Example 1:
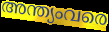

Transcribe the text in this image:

അന്ത്യംവരെ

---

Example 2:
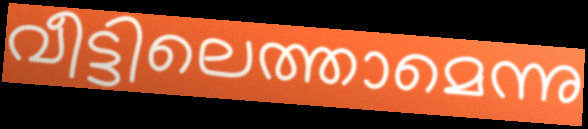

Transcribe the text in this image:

വീട്ടിലെത്താമെന്നു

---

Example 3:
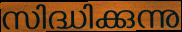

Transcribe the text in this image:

സിദ്ധിക്കുന്നു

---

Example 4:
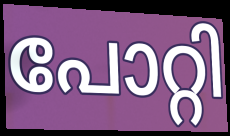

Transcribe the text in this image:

പോറ്റി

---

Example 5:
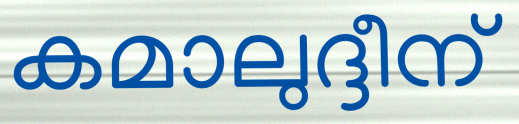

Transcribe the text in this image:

കമാലുദ്ദീന്